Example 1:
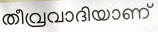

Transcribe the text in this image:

തീവ്രവാദിയാണ്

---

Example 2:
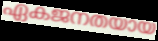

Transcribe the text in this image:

ഏകജനതയായ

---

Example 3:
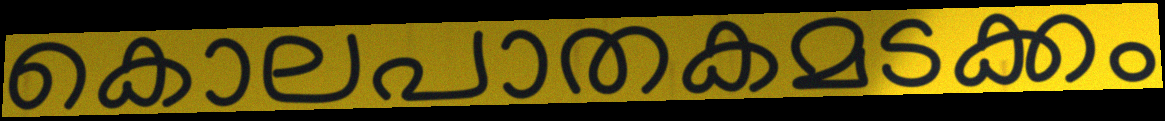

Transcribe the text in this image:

കൊലപാതകമടക്കം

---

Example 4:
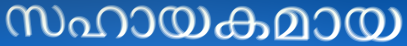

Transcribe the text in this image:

സഹായകമായ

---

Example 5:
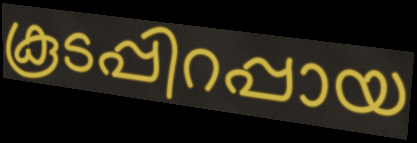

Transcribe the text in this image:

കൂടപ്പിറപ്പായ